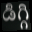
డిగ్గి